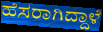
ಹೆಸರಾಗಿದ್ದಾಳೆ